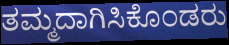
ತಮ್ಮದಾಗಿಸಿಕೊಂಡರು